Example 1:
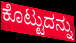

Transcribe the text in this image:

ಕೊಟ್ಟುದನ್ನು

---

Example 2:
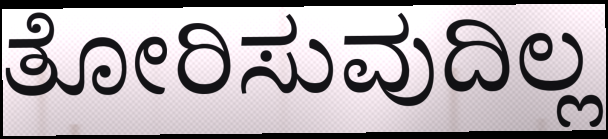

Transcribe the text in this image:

ತೋರಿಸುವುದಿಲ್ಲ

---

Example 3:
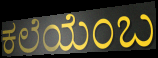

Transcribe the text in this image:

ಕಲೆಯೆಂಬ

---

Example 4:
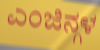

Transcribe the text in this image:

ಎಂಜಿನ್ಗಳ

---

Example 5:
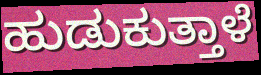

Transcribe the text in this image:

ಹುಡುಕುತ್ತಾಳೆ